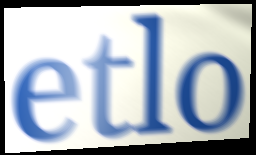
etlo